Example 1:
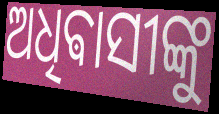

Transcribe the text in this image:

ଅଧିଵାସୀଙ୍କୁ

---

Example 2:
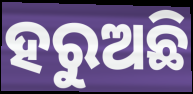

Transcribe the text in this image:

ହରୁଅଛି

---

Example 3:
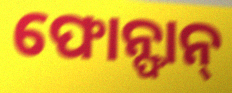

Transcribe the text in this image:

ଫୋନ୍ଫାନ୍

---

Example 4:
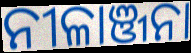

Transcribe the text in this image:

ନୀଳାଞ୍ଜନା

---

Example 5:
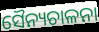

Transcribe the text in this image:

ସୈନ୍ୟଚାଳନା